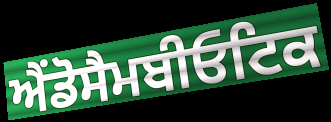
ਐਂਡੋਸੈਮਬੀਓਟਿਕ